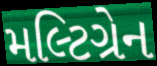
મલ્ટિગ્રેન